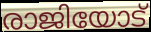
രാജിയോട്